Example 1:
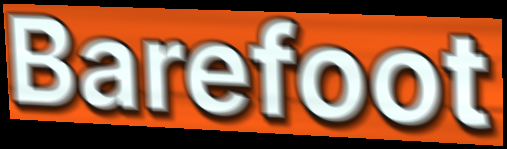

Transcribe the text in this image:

Barefoot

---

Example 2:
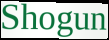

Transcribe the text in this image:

Shogun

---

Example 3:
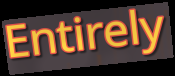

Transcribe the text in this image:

Entirely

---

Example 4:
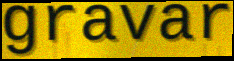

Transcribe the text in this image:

gravar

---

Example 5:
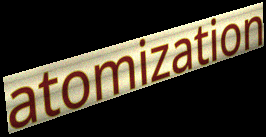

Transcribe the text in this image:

atomization